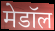
मेडॉल